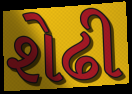
શેઢી